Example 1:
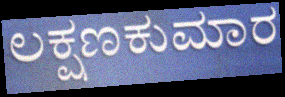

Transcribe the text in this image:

ಲಕ್ಷಣಕುಮಾರ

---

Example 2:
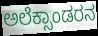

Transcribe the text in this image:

ಅಲೆಕ್ಸಾಂಡರನ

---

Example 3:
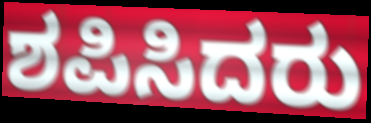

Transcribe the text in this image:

ಶಪಿಸಿದರು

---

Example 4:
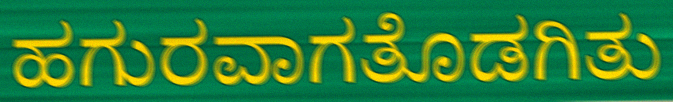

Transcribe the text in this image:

ಹಗುರವಾಗತೊಡಗಿತು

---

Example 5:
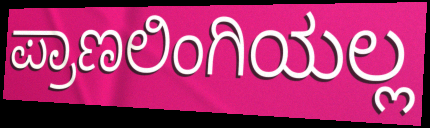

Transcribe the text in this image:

ಪ್ರಾಣಲಿಂಗಿಯಲ್ಲ